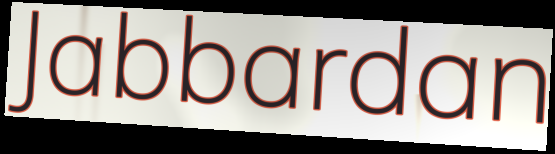
Jabbardan